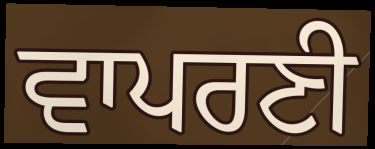
ਵਾਪਰਣੀ